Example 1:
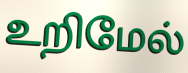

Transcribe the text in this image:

உறிமேல்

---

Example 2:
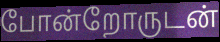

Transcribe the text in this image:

போன்றோருடன்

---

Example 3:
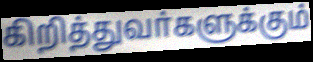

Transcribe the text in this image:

கிறித்துவர்களுக்கும்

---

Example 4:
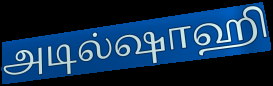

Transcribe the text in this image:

அடில்ஷாஹி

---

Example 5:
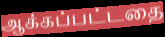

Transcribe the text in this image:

ஆக்கப்பட்டதை